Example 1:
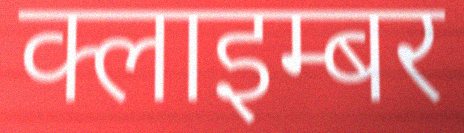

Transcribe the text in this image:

क्लाइम्बर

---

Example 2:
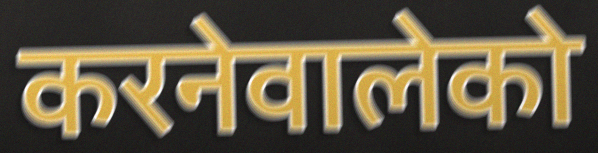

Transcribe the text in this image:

करनेवालेको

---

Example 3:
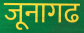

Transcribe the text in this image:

जूनागढ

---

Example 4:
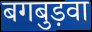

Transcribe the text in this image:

बगबुड़वा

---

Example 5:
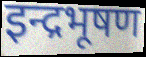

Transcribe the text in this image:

इन्द्रभूषण